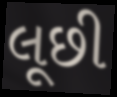
લૂછી